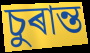
চুৰান্ত